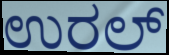
ಉರಲ್